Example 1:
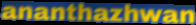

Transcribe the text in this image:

ananthazhwan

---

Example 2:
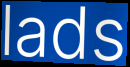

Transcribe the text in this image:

lads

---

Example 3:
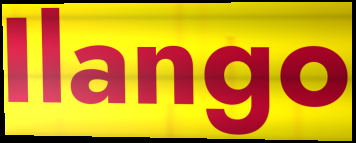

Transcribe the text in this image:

Ilango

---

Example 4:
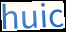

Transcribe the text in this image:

huic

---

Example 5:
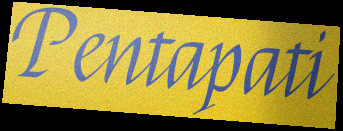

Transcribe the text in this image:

Pentapati